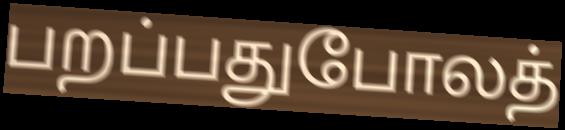
பறப்பதுபோலத்